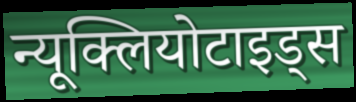
न्यूक्लियोटाइड्स